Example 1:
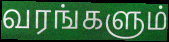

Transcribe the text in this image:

வரங்களும்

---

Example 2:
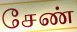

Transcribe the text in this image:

சேண்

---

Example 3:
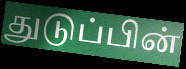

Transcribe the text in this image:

துடுப்பின்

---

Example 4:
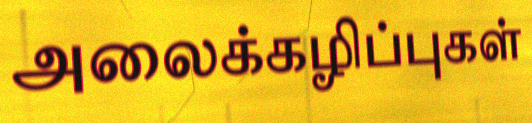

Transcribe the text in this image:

அலைக்கழிப்புகள்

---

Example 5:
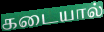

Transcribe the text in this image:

கடையால்